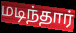
மடிந்தார்